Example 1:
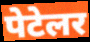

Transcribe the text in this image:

पेटेलर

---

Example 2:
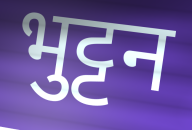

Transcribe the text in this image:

भुट्टन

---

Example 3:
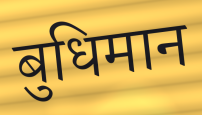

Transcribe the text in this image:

बुधिमान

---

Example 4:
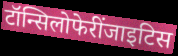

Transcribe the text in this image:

टॉन्सिलोफेरींजाइटिस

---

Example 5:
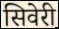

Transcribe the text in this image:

सिवेरी